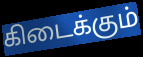
கிடைக்கும்